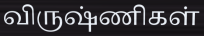
விருஷ்ணிகள்